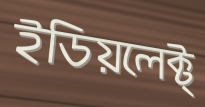
ইডিয়লেক্ট্